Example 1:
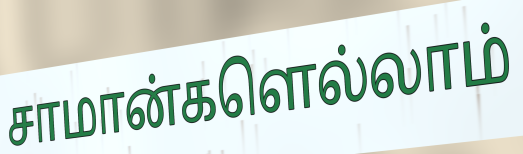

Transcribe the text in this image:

சாமான்களெல்லாம்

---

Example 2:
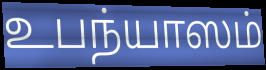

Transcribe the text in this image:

உபந்யாஸம்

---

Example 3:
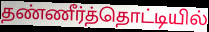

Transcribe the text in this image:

தண்ணீர்த்தொட்டியில்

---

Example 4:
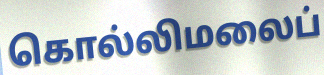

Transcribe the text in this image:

கொல்லிமலைப்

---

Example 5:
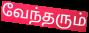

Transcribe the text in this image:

வேந்தரும்